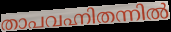
താപവഹ്നിതന്നിൽ